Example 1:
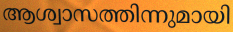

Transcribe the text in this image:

ആശ്വാസത്തിന്നുമായി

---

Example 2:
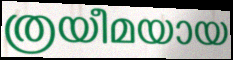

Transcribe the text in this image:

ത്രയീമയായ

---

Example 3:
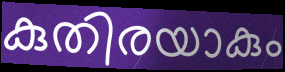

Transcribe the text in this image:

കുതിരയാകും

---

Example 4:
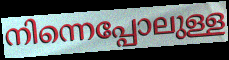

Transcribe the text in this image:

നിന്നെപ്പോലുള്ള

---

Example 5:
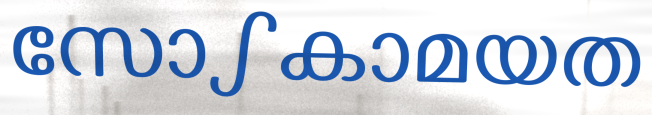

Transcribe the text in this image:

സോഽകാമയത